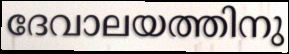
ദേവാലയത്തിനു